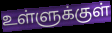
உள்ளுக்குள்